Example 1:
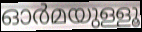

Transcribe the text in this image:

ഓർമയുള്ളൂ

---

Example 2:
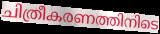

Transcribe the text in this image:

ചിത്രീകരണത്തിനിടെ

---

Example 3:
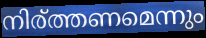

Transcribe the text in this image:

നിര്ത്തണമെന്നും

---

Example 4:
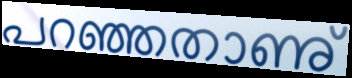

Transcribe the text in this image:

പറഞ്ഞതാണു്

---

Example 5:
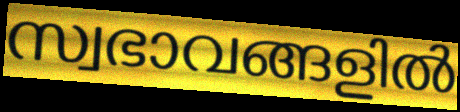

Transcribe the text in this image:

സ്വഭാവങ്ങളിൽ